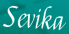
Sevika